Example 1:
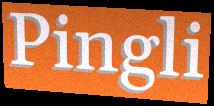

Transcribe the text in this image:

Pingli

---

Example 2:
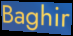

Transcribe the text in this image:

Baghir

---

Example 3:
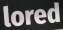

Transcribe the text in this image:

lored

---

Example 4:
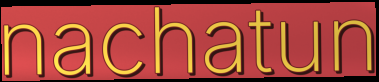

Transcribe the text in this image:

nachatun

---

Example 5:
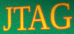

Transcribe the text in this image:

JTAG